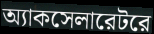
অ্যাকসেলারেটরে